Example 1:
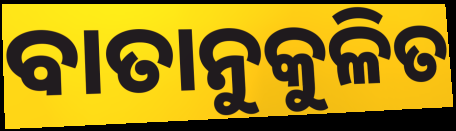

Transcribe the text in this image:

ବାତାନୁକୁଳିତ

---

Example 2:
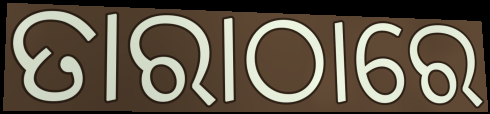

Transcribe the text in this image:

ତାରାଠାରେ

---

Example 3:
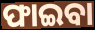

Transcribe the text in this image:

ଫାଇବା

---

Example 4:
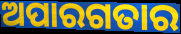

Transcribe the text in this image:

ଅପାରଗତାର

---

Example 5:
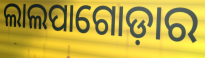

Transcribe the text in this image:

ଲାଲପାଗୋଡ଼ାର